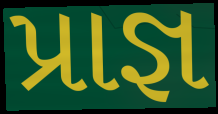
પ્રાજ્ઞ